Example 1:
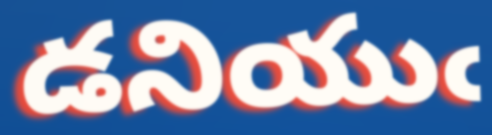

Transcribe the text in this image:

డనియుఁ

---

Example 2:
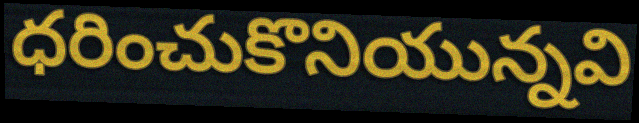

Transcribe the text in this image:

ధరించుకొనియున్నవి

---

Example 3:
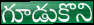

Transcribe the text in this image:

గూడుకొని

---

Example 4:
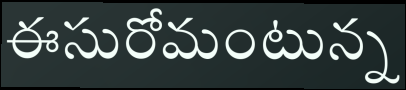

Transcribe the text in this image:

ఈసురోమంటున్న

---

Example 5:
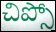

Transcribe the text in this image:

చిప్సో